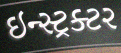
ઇન્સ્ટ્રક્ટર